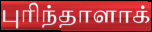
புரிந்தாளாக்